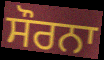
ਸੌਰਨਾ